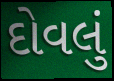
દોવલું